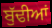
ਬੁੱਢੀਆਂ